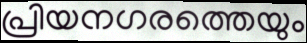
പ്രിയനഗരത്തെയും